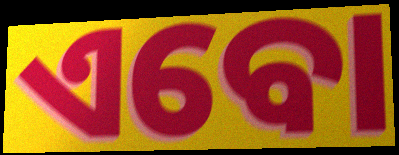
ଏବୋ